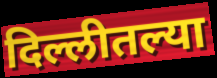
दिल्लीतल्या